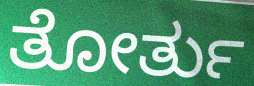
ತೋರ್ತು